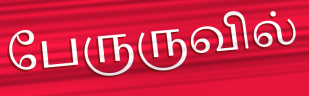
பேருருவில்